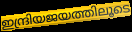
ഇന്ദ്രിയജയത്തിലൂടെ